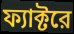
ফ্যাক্টরে